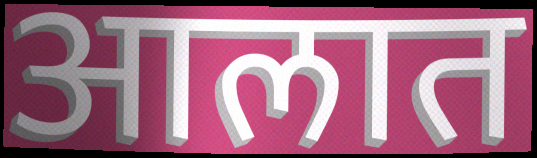
आलात